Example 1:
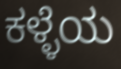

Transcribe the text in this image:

ಕಳ್ಳೆಯ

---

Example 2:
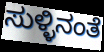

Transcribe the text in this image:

ಸುಳ್ಳಿನಂತೆ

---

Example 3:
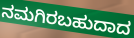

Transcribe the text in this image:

ನಮಗಿರಬಹುದಾದ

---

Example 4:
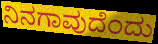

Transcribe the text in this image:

ನಿನಗಾವುದೆಂದು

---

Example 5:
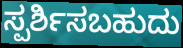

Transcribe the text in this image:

ಸ್ಪರ್ಶಿಸಬಹುದು